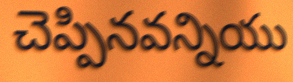
చెప్పినవన్నియు